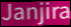
Janjira